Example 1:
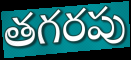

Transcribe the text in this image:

తగరపు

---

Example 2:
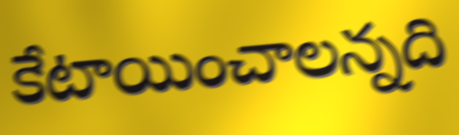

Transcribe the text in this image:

కేటాయించాలన్నది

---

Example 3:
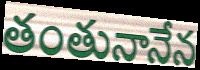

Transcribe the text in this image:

తంతునానేన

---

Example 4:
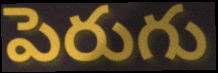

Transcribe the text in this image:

పెరుగు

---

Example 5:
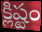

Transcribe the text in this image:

క్లిష్టం